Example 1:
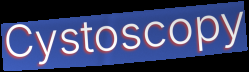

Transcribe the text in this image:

Cystoscopy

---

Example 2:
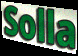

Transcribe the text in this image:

Solla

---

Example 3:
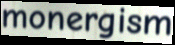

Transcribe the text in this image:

monergism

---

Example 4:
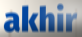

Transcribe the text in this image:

akhir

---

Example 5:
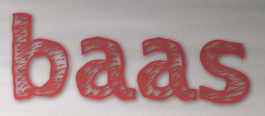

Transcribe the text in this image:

baas